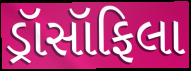
ડ્રૉસૉફિલા